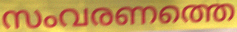
സംവരണത്തെ